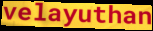
velayuthan